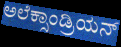
ಅಲೆಕ್ಸಾಂಡ್ರಿಯನ್